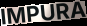
IMPURA